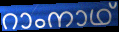
റാംനാഥ്